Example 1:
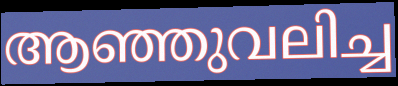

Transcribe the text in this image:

ആഞ്ഞുവലിച്ച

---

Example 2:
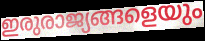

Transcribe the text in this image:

ഇരുരാജ്യങ്ങളെയും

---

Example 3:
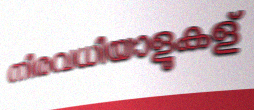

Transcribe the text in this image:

നിരവധിയാളുകള്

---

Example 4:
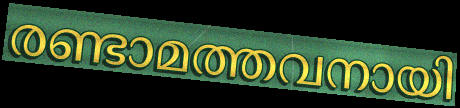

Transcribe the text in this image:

രണ്ടാമത്തവനായി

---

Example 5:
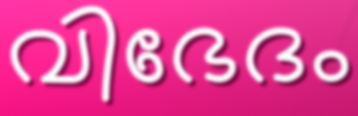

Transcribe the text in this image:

വിഭേദം